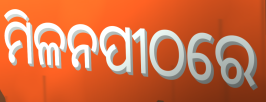
ମିଳନପୀଠରେ